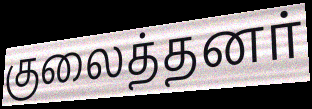
குலைத்தனர்